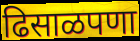
ढिसाळपणा